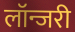
लॉन्जरी